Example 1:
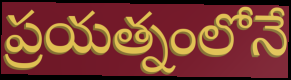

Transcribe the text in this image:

ప్రయత్నంలోనే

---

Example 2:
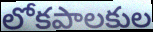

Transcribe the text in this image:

లోకపాలకుల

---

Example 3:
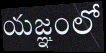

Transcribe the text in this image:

యజ్ఞంలో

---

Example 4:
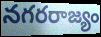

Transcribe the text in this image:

నగరరాజ్యం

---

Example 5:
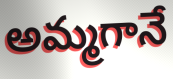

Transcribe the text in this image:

అమ్మగానే